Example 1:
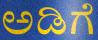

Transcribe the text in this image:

ಅಡಿಗೆ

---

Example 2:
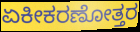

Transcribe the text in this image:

ಏಕೀಕರಣೋತ್ತರ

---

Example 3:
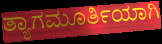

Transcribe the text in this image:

ತ್ಯಾಗಮೂರ್ತಿಯಾಗಿ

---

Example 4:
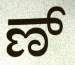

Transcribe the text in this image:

ಣ್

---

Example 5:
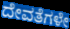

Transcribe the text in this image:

ದೇವತೆಗಳೇ